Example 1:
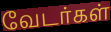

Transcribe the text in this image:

வேடர்கள்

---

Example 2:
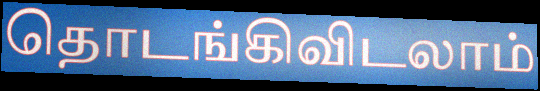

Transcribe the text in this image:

தொடங்கிவிடலாம்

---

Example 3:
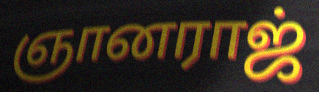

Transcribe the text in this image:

ஞானராஜ்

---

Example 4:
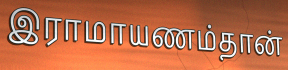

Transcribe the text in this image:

இராமாயணம்தான்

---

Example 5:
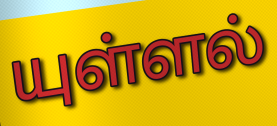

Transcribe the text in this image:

யுள்ளல்